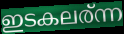
ഇടകലര്ന്ന